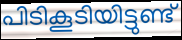
പിടികൂടിയിട്ടുണ്ട്